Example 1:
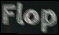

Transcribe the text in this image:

Flop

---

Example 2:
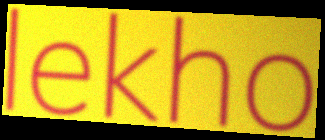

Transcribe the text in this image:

lekho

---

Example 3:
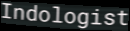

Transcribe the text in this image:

Indologist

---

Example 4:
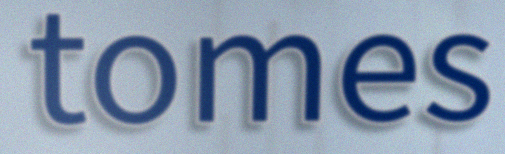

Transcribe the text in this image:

tomes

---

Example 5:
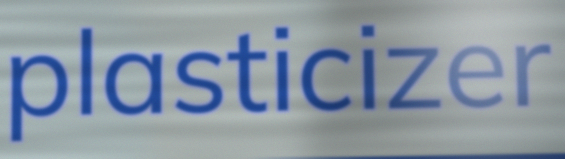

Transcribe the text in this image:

plasticizer